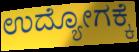
ಉದ್ಯೋಗಕ್ಕೆ